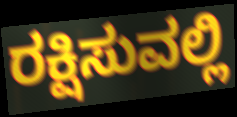
ರಕ್ಷಿಸುವಲ್ಲಿ